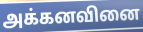
அக்கனவினை